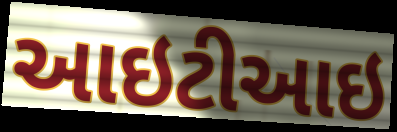
આઇટીઆઇ